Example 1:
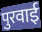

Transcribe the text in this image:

पुरवाई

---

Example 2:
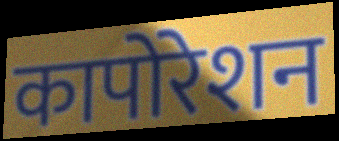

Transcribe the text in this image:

कापोरेशन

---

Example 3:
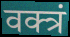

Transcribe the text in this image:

वक्त्रं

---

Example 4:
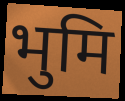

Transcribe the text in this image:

भुमि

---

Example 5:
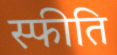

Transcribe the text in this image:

स्‍फीति